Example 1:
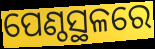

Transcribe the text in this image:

ପେଣ୍ଠସ୍ଥଳରେ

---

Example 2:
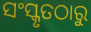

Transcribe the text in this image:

ସଂସ୍କୃତଠାରୁ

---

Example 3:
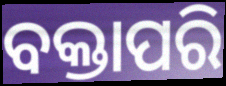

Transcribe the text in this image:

ବକ୍ତାପରି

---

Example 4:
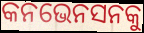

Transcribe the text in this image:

କନଭେନସନକୁ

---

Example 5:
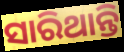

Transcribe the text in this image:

ସାରିଥାନ୍ତି